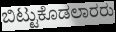
ಬಿಟ್ಟುಕೊಡಲಾರರು